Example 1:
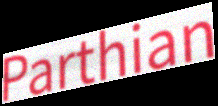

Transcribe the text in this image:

Parthian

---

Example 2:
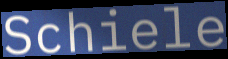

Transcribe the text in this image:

Schiele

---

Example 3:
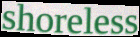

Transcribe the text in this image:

shoreless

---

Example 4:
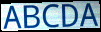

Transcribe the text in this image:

ABCDA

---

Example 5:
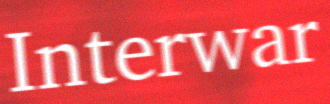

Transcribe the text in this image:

Interwar